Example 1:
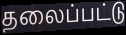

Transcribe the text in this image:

தலைப்பட்டு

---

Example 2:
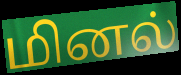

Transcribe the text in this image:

மினல்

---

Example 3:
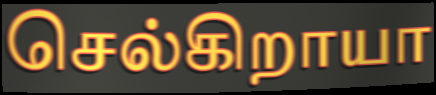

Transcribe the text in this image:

செல்கிறாயா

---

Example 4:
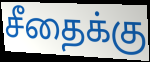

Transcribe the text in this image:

சீதைக்கு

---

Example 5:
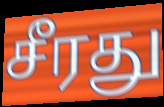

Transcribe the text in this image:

சீரது